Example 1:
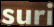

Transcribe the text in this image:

suri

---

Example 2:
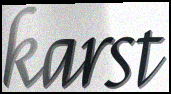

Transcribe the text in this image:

karst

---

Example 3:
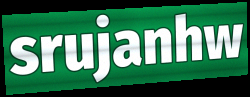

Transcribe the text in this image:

srujanhw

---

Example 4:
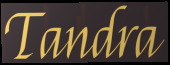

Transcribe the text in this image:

Tandra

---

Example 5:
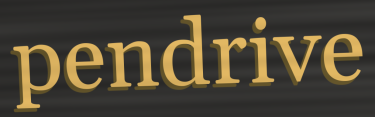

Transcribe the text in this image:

pendrive